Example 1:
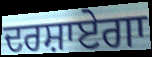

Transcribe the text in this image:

ਦਰਸ਼ਾਏਗਾ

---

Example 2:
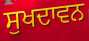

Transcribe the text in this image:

ਸੁਖਦਾਵਨ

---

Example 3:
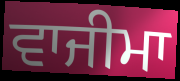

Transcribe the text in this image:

ਵਾਜੀਮਾ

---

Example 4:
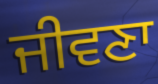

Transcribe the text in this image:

ਜੀਵਣਾ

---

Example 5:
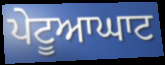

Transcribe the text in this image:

ਪੇਟੂਆਘਾਟ